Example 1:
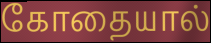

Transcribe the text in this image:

கோதையால்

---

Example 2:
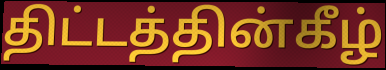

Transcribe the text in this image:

திட்டத்தின்கீழ்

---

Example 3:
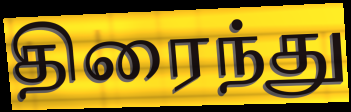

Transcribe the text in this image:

திரைந்து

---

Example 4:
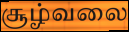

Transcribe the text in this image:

சூழ்வலை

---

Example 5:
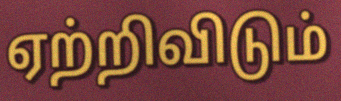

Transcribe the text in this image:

ஏற்றிவிடும்